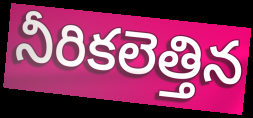
నీరికలెత్తిన